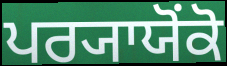
ਪਰ੍ਯਾਯੋਂਕੋ